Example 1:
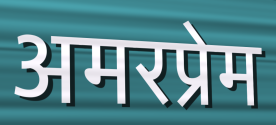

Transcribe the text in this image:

अमरप्रेम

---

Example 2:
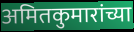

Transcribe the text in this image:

अमितकुमारांच्या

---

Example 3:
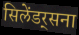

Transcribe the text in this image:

सिलेंडर्सना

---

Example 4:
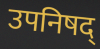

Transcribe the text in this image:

उपनिषद्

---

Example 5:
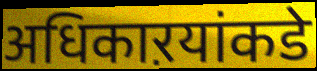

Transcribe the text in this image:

अधिकाऱयांकडे